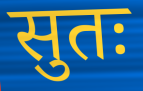
सुतः